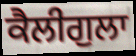
ਕੈਲੀਗੁਲਾ